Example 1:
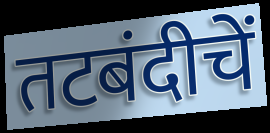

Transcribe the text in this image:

तटबंदीचें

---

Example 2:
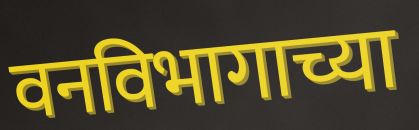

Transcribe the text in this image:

वनविभागाच्या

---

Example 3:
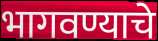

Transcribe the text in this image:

भागवण्याचे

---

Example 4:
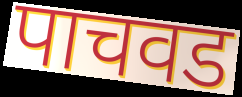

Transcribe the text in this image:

पाचवड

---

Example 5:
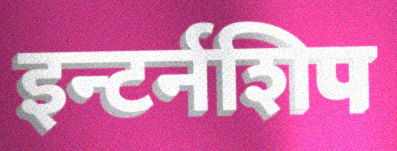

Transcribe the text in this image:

इन्टर्नशिप